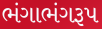
ભંગાભંગરૂપ